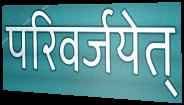
परिवर्जयेत्